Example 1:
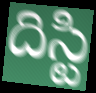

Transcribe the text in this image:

దిస్టి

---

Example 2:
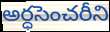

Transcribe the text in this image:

అర్ధసెంచరీని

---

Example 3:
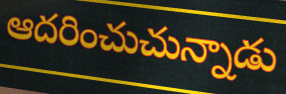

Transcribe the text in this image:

ఆదరించుచున్నాడు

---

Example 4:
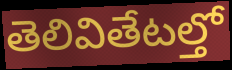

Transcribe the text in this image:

తెలివితేటల్తో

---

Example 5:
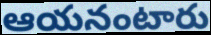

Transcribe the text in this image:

ఆయనంటారు